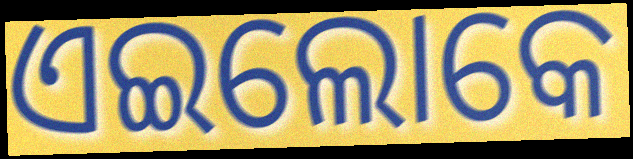
ଏଇଲୋକେ